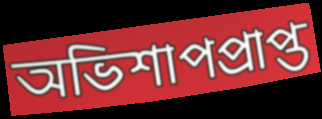
অভিশাপপ্রাপ্ত